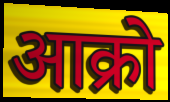
आक्रो